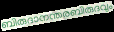
ബിരുദാനന്തരബിരുദവും